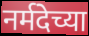
नर्मदेच्या